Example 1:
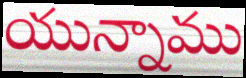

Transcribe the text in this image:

యున్నాము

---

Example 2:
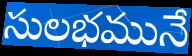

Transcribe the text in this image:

సులభమునే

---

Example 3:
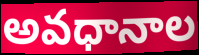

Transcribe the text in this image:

అవధానాల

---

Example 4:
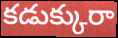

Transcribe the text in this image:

కడుక్కురా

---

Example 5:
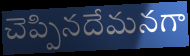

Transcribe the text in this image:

చెప్పినదేమనగా